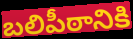
బలిపీఠానికి